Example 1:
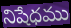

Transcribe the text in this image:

నిషేధము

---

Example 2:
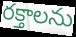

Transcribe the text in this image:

రక్తాలను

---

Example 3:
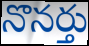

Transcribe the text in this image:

నొనర్తు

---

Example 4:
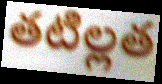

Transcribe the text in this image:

తటిల్లత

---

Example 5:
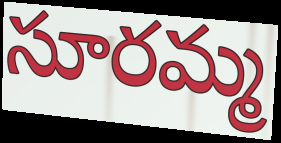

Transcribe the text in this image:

సూరమ్మ